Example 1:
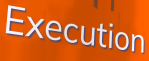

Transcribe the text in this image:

Execution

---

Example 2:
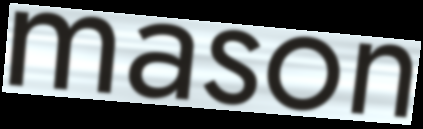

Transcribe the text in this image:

mason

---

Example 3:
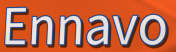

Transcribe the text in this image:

Ennavo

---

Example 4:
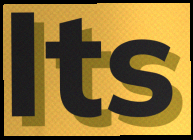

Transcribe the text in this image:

Its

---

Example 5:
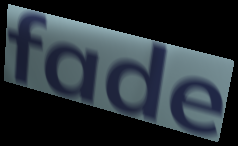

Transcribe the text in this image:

fade